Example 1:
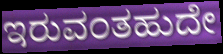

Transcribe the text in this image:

ಇರುವಂತಹುದೇ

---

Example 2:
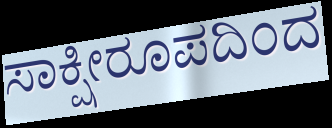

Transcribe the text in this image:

ಸಾಕ್ಷೀರೂಪದಿಂದ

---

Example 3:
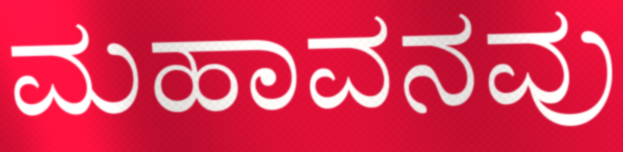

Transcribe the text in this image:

ಮಹಾವನವು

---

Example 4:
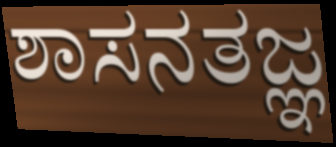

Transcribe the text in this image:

ಶಾಸನತಜ್ಞ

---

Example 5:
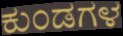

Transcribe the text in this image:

ಕುಂಡಗಳ